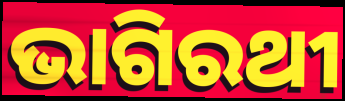
ଭାଗିରଥୀ